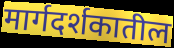
मार्गदर्शकातील